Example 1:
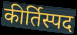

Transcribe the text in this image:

कीर्तिस्पद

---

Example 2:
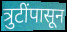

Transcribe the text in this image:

त्रुटींपासून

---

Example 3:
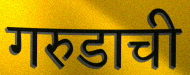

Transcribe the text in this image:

गरुडाची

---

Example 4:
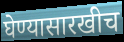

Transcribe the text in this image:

घेण्यासारखीच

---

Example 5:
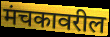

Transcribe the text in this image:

मंचकावरील